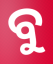
ବୁ